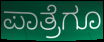
ಪಾತ್ರೆಗೂ